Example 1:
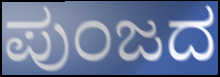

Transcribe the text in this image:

ಪುಂಜದ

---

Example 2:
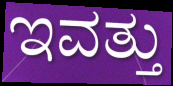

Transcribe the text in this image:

ಇವತ್ತು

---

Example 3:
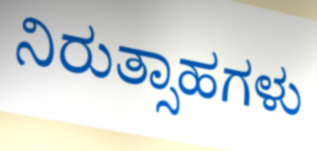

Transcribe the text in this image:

ನಿರುತ್ಸಾಹಗಳು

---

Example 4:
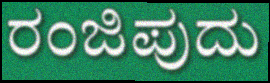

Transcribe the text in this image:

ರಂಜಿಪುದು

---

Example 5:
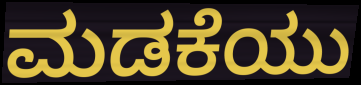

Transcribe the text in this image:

ಮಡಕೆಯು